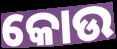
କୋଉ